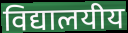
विद्यालयीय